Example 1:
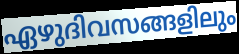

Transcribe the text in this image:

ഏഴുദിവസങ്ങളിലും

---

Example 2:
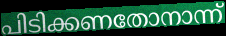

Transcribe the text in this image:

പിടിക്കണതോനാന്ന്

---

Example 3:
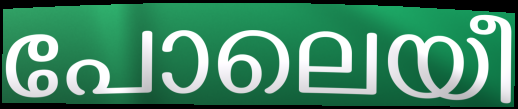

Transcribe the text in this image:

പോലെയീ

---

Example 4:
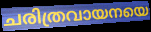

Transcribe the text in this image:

ചരിത്രവായനയെ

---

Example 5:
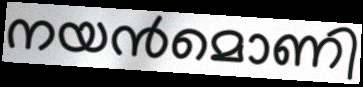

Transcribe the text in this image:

നയൻമൊണി